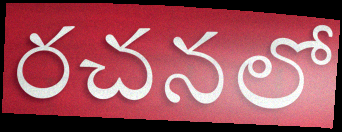
రచనలో